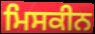
ਮਿਸਕੀਨ